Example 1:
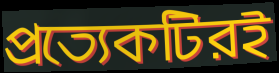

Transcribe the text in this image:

প্রত্যেকটিরই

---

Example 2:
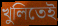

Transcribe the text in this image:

খুলিতেই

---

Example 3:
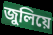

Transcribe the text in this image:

জুলিয়ে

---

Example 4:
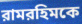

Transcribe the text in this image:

রামরহিমকে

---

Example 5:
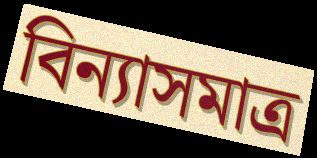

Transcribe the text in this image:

বিন্যাসমাত্র